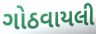
ગોઠવાયલી